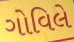
ગોવિલે